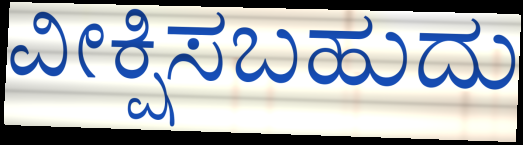
ವೀಕ್ಷಿಸಬಹುದು